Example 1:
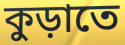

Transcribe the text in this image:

কুড়াতে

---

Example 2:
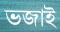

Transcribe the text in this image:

ভজাই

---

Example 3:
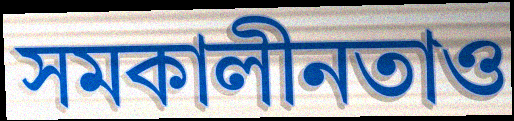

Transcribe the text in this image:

সমকালীনতাও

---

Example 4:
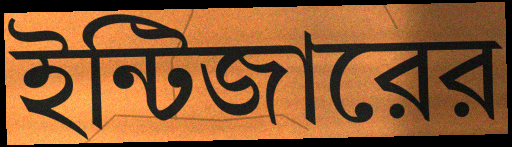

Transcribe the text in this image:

ইন্টিজারের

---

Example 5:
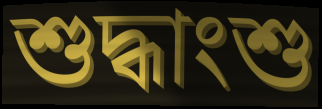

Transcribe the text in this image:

শুদ্ধাংশু